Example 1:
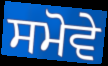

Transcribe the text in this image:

ਸਮੋਵੇ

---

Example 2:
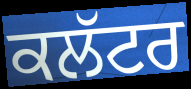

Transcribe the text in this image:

ਕਲੱਟਰ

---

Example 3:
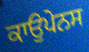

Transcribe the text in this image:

ਕਾਉਪੇਨਸ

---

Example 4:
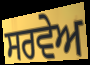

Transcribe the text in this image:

ਸਰਵੇਅ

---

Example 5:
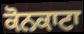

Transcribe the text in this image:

ਕੋਨਕਾਟਾ